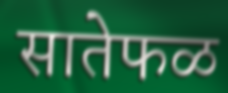
सातेफळ